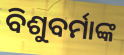
ବିଶୁବର୍ମାଙ୍କ